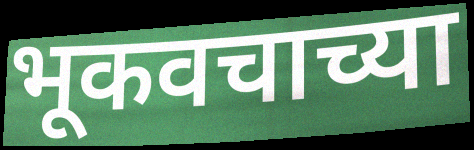
भूकवचाच्या